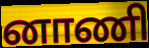
னாணி